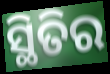
ସ୍ଥିତିର